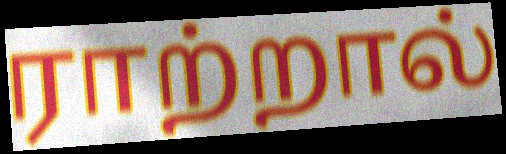
ராற்றால்